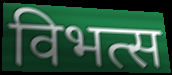
विभत्स